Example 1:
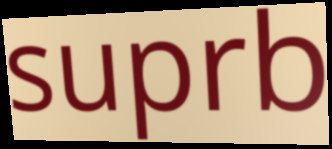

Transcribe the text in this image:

suprb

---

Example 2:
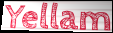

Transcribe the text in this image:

Yellam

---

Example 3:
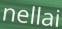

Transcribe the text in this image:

nellai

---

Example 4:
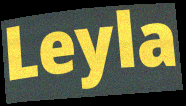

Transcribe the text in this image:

Leyla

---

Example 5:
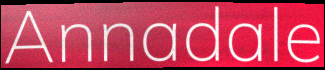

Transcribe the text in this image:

Annadale